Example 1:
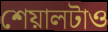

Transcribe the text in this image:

শেয়ালটাও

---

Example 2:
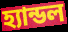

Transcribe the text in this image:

হ্যান্ডল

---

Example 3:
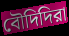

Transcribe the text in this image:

বৌদিদিরা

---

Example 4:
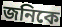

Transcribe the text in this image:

জনিকে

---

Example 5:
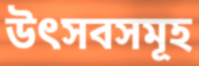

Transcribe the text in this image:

উৎসবসমূহ